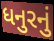
ધનુરનું